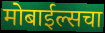
मोबाईल्सचा